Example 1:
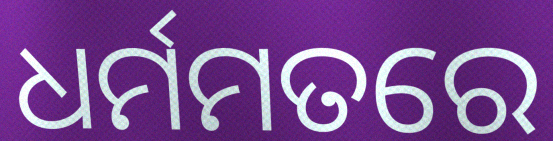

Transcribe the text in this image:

ଧର୍ମମତରେ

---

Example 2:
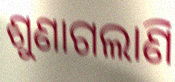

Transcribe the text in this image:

ଶୁଣାଗଲାଣି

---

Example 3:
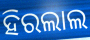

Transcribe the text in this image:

ହିରଲାଲ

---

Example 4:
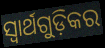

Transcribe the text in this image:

ସ୍ୱାର୍ଥଗୁଡ଼ିକର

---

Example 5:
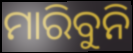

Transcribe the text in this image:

ମାରିବୁନି